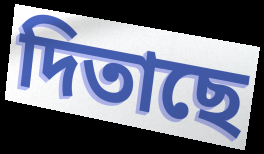
দিতাছে